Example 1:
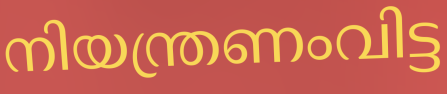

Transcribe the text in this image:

നിയന്ത്രണംവിട്ട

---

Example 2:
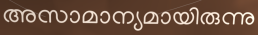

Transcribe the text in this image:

അസാമാന്യമായിരുന്നു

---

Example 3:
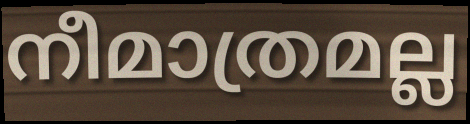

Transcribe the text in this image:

നീമാത്രമല്ല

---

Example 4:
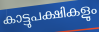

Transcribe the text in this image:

കാട്ടുപക്ഷികളും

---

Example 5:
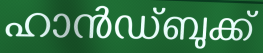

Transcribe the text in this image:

ഹാൻഡ്ബുക്ക്